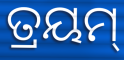
ତ୍ରୟମ୍